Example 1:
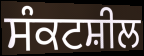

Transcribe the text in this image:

ਸੰਕਟਸ਼ੀਲ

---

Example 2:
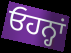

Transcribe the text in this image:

ਓਹਨ੍ਹਾਂ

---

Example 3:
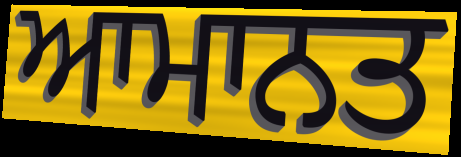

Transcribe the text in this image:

ਆਮਾਨਤ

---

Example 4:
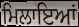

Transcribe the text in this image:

ਮਿਲਾਇਆਂ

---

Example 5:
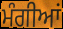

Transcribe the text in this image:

ਮੰਗੀਆਂ